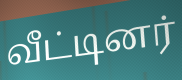
வீட்டினர்